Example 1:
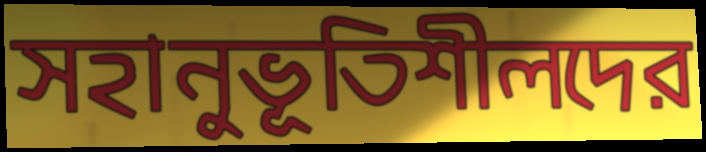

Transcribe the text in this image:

সহানুভূতিশীলদের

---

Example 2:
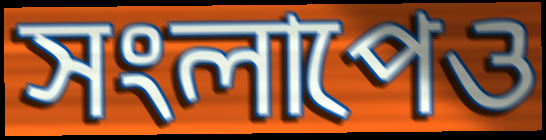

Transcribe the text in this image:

সংলাপেও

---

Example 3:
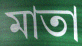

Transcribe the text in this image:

মাতা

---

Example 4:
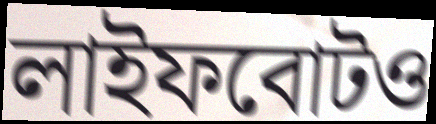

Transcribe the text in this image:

লাইফবোটও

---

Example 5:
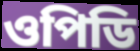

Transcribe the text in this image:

ওপিডি